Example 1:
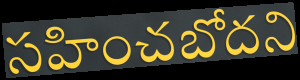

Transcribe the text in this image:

సహించబోదని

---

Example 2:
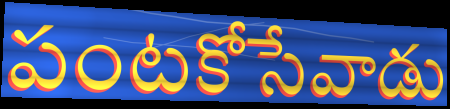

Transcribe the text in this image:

పంటకోసేవాడు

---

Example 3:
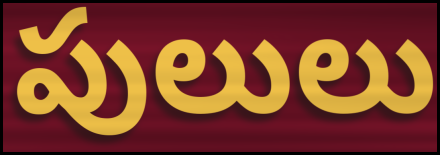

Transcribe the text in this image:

పులులు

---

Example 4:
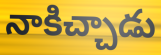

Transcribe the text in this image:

నాకిచ్చాడు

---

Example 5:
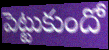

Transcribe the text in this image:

పెట్టుకుందో